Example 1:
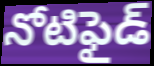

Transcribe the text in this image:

నోటిఫైడ్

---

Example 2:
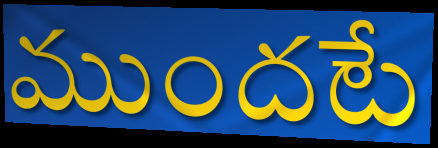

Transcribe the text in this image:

ముందటే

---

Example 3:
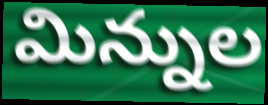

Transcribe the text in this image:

మిన్నుల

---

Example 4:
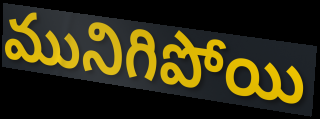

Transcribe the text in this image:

మునిగిపోయి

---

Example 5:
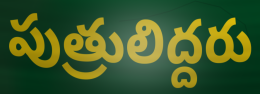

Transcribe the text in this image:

పుత్రులిద్దరు